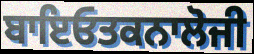
ਬਾਇਓਤਕਨਾਲੋਜੀ